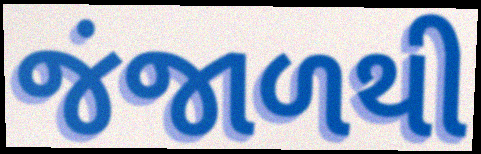
જંજાળથી